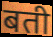
बती